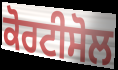
ਕੋਰਟੀਸੋਲ